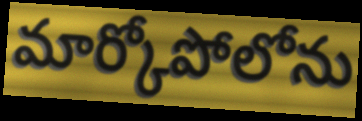
మార్కోపోలోను